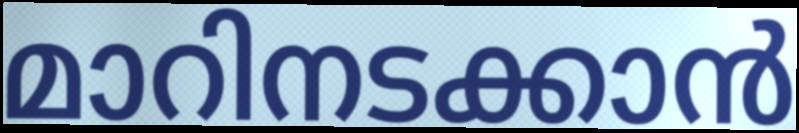
മാറിനടക്കാൻ